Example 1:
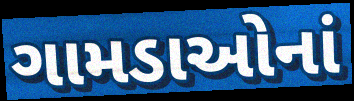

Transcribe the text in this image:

ગામડાઓનાં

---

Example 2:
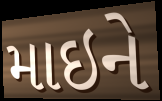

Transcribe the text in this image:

માઇને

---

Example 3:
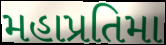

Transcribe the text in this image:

મહાપ્રતિમા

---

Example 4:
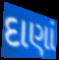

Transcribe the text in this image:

દાણાં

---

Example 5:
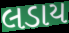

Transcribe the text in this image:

લડાય